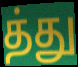
த்து